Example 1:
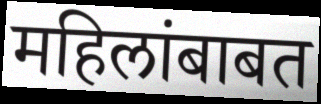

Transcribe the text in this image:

महिलांबाबत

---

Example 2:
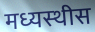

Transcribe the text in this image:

मध्यस्थीस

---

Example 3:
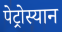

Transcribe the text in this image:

पेट्रोस्यान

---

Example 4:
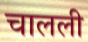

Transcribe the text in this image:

चालली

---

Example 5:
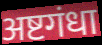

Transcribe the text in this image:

अष्टगंधा